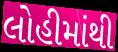
લોહીમાંથી